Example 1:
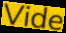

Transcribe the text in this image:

Vide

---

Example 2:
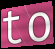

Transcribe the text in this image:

to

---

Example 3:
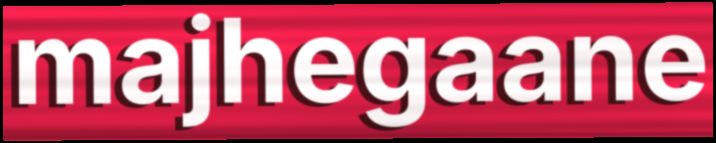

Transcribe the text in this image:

majhegaane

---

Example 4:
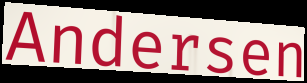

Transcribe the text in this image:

Andersen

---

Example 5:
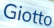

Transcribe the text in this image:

Giotto